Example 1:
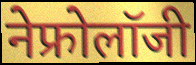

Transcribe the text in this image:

नेफ्रोलॉजी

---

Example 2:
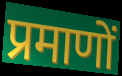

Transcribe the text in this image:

प्रमाणों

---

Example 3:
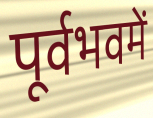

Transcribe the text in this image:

पूर्वभवमें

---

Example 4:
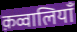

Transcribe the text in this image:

क़व्वालियाँ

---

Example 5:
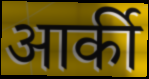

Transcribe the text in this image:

आर्की